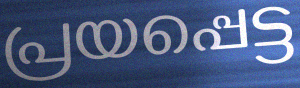
പ്രയപ്പെട്ട